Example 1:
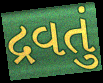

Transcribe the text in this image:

દ્રવતું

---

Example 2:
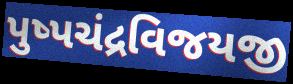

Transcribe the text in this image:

પુષ્પચંદ્રવિજયજી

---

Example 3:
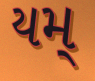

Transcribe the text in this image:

યમ્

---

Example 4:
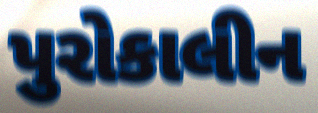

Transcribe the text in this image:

પુરોકાલીન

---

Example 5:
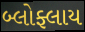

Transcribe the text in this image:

બ્લોફ્લાય